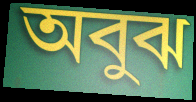
অবুঝ